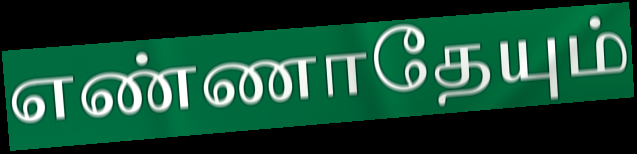
எண்ணாதேயும்